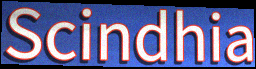
Scindhia